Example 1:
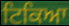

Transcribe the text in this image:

ਟਿਕਿਆ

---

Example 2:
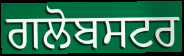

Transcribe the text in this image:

ਗਲੋਬਸਟਰ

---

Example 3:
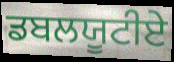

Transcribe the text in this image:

ਡਬਲਯੂਟੀਏ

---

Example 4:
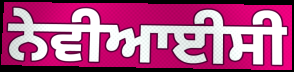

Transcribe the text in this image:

ਨੇਵੀਆਈਸੀ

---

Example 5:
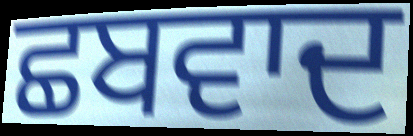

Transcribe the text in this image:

ਛਬਵਾਦ